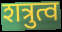
शत्रुत्व